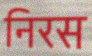
निरस